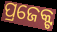
ପ୍ରଜେକ୍ଟ